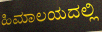
ಹಿಮಾಲಯದಲ್ಲಿ